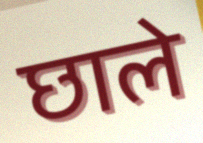
छाले